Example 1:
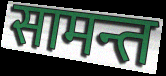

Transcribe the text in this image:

सामन्त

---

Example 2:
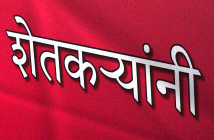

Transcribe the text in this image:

शेतकऱ्यांनी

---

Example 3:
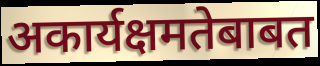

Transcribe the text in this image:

अकार्यक्षमतेबाबत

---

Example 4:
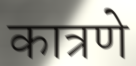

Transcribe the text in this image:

कात्रणे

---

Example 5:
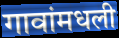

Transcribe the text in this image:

गावांमधली